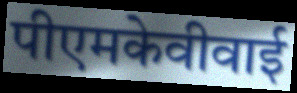
पीएमकेवीवाई